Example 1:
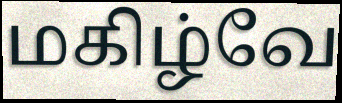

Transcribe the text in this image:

மகிழ்வே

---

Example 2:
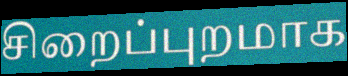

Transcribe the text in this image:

சிறைப்புறமாக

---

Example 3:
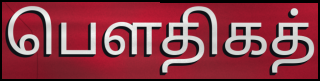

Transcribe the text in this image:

பௌதிகத்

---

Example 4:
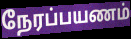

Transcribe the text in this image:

நேரப்பயணம்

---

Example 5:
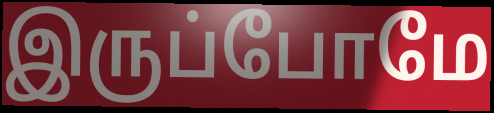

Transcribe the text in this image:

இருப்போமே